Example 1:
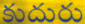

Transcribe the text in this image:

కుదురు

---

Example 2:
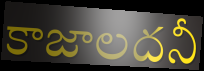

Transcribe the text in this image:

కాజాలదనీ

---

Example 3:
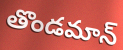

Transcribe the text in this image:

తొండమాన్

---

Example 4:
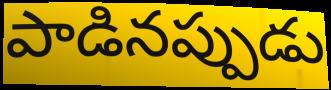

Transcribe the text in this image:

పాడినప్పుడు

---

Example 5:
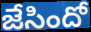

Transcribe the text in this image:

జేసిందో